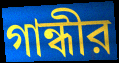
গান্ধীর